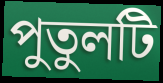
পুতুলটি